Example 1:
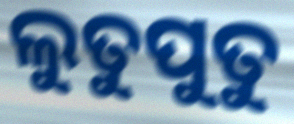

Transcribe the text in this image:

ଲୁତୁପୁତୁ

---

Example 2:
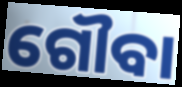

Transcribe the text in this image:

ଗୌବା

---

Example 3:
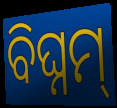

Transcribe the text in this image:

ବିଘ୍ନମ୍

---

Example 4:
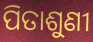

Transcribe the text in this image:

ପିତାଶୁଣୀ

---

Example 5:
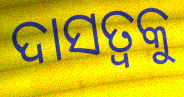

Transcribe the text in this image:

ଦାସତ୍ୱକୁ